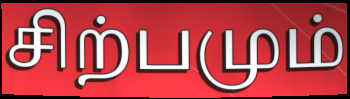
சிற்பமும்